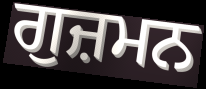
ਗੁਜ਼ਮਨ